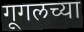
गूगलच्या